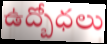
ఉద్బోధలు